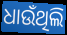
ଧାଉଁଥିଲି